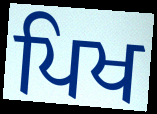
ਪਿਖ